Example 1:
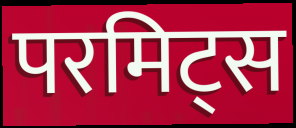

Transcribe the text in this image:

परमिट्स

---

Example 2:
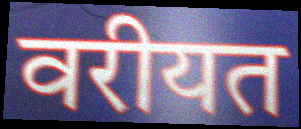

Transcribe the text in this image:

वरीयत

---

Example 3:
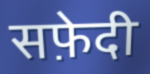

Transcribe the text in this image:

सफ़ेदी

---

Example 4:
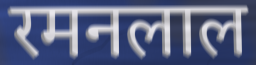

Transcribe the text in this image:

रमनलाल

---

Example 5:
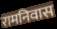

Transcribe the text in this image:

रामनिवास